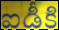
ఐడీకి